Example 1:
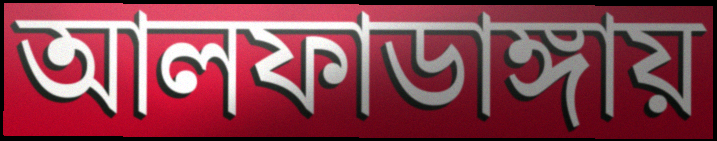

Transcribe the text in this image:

আলফাডাঙ্গায়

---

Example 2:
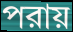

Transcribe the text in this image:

পরায়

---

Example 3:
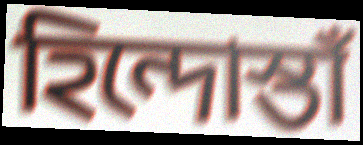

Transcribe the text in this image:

হিন্দোস্তাঁ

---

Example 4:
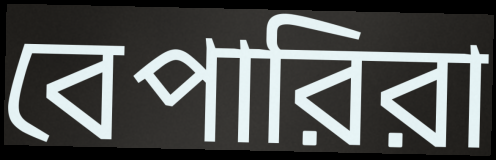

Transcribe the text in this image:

বেপারিরা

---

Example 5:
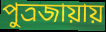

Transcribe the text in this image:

পুত্রজায়ায়